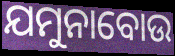
ଯମୁନାବୋଉ